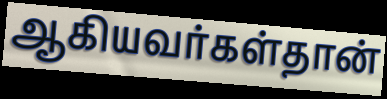
ஆகியவர்கள்தான்